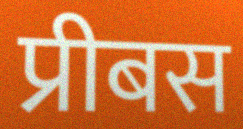
प्रीबस